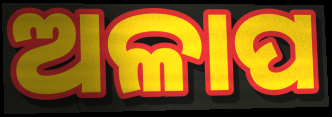
ଅଳାପ